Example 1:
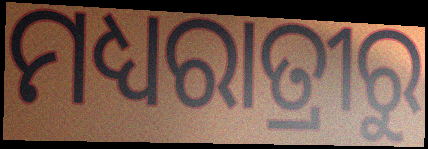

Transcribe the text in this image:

ମଧ୍ୟରାତ୍ରୀରୁ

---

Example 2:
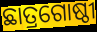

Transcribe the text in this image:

ଛାତ୍ରଗୋଷ୍ଠୀ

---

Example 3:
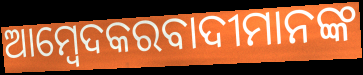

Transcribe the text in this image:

ଆମ୍ବେଦକରବାଦୀମାନଙ୍କ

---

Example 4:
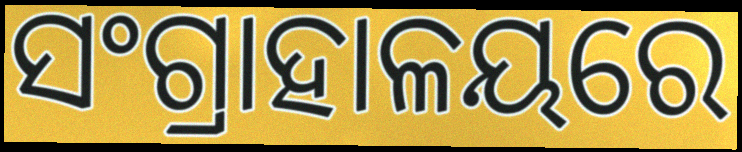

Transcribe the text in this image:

ସଂଗ୍ରାହାଳୟରେ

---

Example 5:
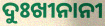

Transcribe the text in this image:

ଦୁଃଖୀନାନୀ